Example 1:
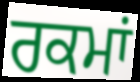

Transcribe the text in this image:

ਰਕਮਾਂ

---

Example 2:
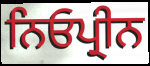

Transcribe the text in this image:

ਨਿਓਪ੍ਰੀਨ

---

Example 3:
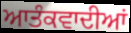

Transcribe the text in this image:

ਆਤੰਕਵਾਦੀਆਂ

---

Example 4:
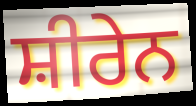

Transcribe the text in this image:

ਸ਼ੀਰੇਨ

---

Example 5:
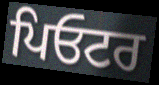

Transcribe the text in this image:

ਪਿਓਟਰ